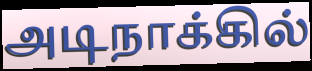
அடிநாக்கில்